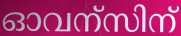
ഓവന്സിന്